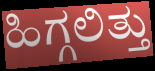
ಹಿಗ್ಗಲಿತ್ತು